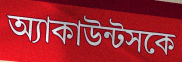
অ্যাকাউন্টসকে